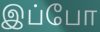
இப்போ